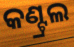
କଣ୍ଟ୍ରଲ